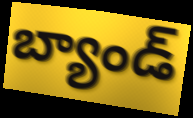
బ్యాండ్